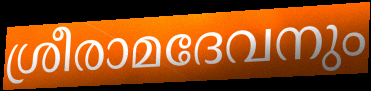
ശ്രീരാമദേവനും